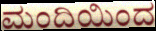
ಮಂದಿಯಿಂದ